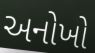
અનોખો